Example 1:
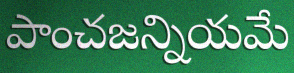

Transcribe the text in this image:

పాంచజన్నియమే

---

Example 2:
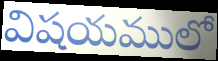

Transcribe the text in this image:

విషయములో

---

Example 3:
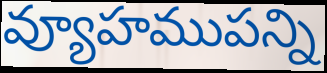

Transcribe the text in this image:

వ్యూహముపన్ని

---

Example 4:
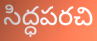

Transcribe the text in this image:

సిద్ధపరచి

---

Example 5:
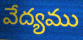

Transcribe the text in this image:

వేద్యము